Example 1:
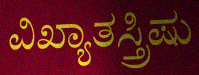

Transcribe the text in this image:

ವಿಖ್ಯಾತಸ್ತ್ರಿಷು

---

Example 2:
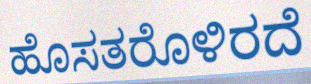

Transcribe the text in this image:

ಹೊಸತರೊಳಿರದೆ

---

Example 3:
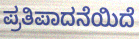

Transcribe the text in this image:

ಪ್ರತಿಪಾದನೆಯಿದೆ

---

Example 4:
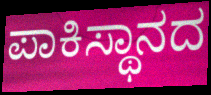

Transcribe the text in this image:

ಪಾಕಿಸ್ಥಾನದ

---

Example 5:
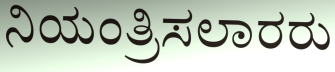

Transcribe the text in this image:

ನಿಯಂತ್ರಿಸಲಾರರು